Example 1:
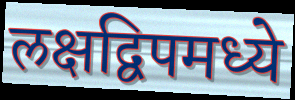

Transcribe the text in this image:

लक्षद्विपमध्ये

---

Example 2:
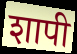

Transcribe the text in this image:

शापी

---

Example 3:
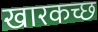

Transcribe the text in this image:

खारकच्छ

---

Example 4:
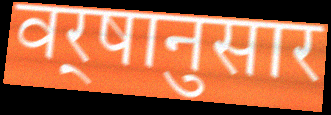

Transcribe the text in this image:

वर्षानुसार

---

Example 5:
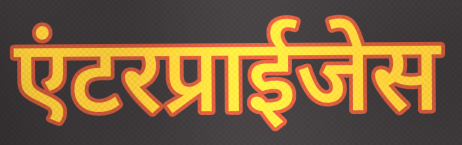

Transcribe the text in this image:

एंटरप्राईजेस